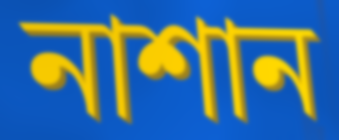
নাশান